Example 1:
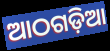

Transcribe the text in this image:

ଆଠଗଡ଼ିଆ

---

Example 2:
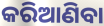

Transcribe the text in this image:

କରିଆଣିବା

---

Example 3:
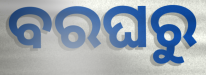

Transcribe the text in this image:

ବରଘରୁ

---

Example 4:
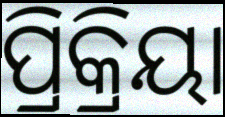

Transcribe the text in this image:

ପ୍ରିକ୍ରିୟା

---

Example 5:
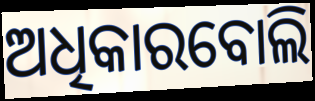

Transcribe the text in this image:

ଅଧିକାରବୋଲି